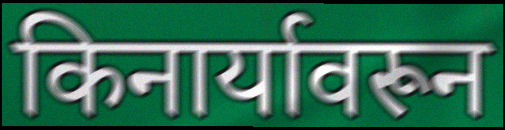
किनार्यावरून